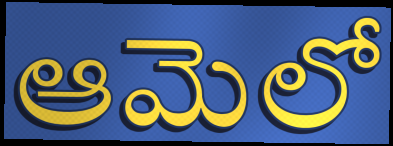
ఆమెలో